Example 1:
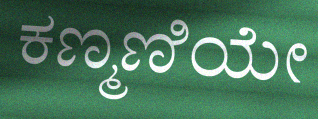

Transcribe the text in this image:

ಕಣ್ಮಣಿಯೇ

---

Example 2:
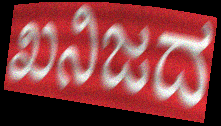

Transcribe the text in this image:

ಖನಿಜದ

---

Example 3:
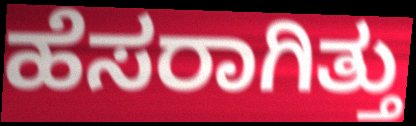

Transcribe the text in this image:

ಹೆಸರಾಗಿತ್ತು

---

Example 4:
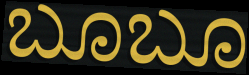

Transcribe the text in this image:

ಬೂಬೂ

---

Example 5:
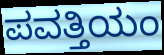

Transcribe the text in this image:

ಪವತ್ತಿಯಂ